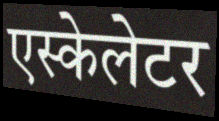
एस्केलेटर